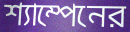
শ্যাম্পেনের